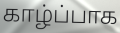
காழ்ப்பாக